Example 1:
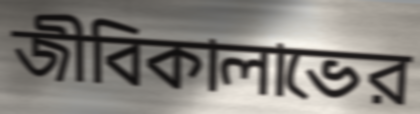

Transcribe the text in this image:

জীবিকালাভের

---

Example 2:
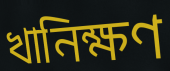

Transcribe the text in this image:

খানিক্ষণ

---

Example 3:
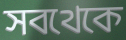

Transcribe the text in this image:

সবথেকে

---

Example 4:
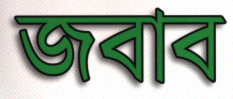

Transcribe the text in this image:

জবাব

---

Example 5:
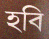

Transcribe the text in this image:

হবি